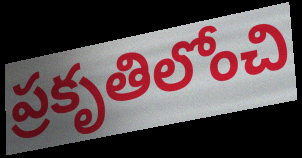
ప్రకృతిలోంచి